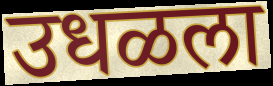
उधळला